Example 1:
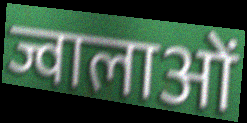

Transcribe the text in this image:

ज्वालाओं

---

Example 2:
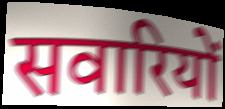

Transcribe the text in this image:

सवारियों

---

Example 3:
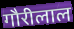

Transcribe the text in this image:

गौरीलाल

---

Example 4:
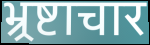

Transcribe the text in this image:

भ्र्रष्टाचार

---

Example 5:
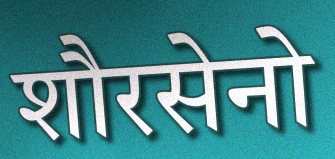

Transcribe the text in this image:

शौरसेनो